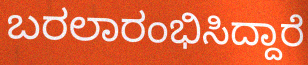
ಬರಲಾರಂಭಿಸಿದ್ದಾರೆ